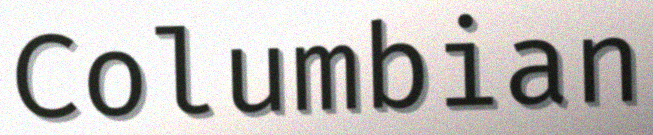
Columbian